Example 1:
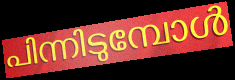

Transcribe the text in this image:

പിന്നിടുമ്പോൾ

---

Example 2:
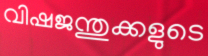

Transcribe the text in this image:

വിഷജന്തുക്കളുടെ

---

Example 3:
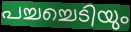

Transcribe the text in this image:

പച്ചച്ചെടിയും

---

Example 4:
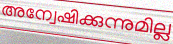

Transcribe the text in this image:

അന്വേഷിക്കുന്നുമില്ല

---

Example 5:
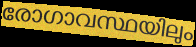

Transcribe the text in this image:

രോഗാവസ്ഥയിലും